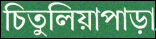
চিতুলিয়াপাড়া